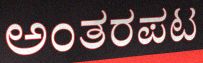
ಅಂತರಪಟ